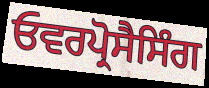
ਓਵਰਪ੍ਰੋਸੈਸਿੰਗ